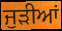
ਜੁੜੀਆਂ